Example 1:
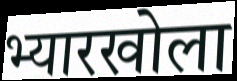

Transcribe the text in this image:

भ्यारखोला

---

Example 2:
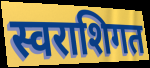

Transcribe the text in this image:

स्वराशिगत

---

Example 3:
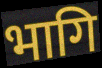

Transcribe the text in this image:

भागि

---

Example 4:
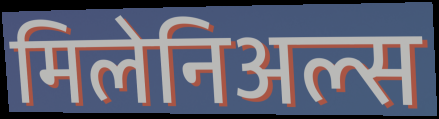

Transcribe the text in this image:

मिलेनिअल्स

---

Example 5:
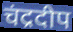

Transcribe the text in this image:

चंद्रदीप